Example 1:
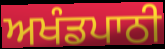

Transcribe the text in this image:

ਅਖੰਡਪਾਠੀ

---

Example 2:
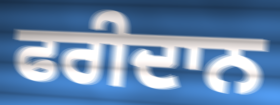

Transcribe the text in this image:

ਫਰੀਦਾਨ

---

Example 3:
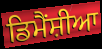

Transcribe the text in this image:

ਡਿਮੈਂਸ਼ੀਆ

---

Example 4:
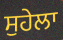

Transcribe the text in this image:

ਸੁਹੇਲਾ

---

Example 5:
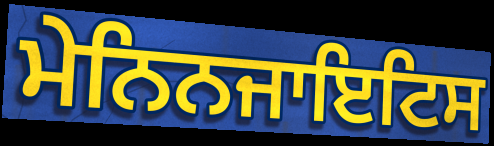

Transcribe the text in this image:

ਮੇਨਿਨਜਾਇਟਿਸ